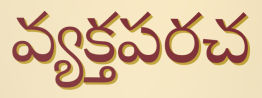
వ్యక్తపరచ